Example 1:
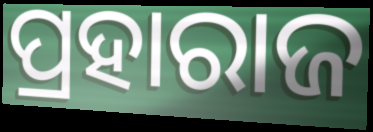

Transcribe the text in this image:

ପ୍ରହାରାଜ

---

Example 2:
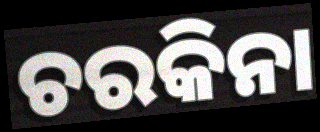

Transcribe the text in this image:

ଚରକିନା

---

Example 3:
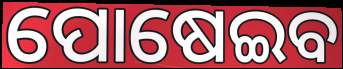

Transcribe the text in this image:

ପୋଷେଇବ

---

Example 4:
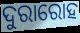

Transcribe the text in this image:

ଦୁରାରୋହ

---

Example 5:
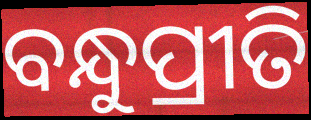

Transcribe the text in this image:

ବନ୍ଧୁପ୍ରୀତି